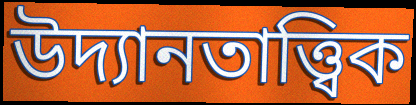
উদ্যানতাত্ত্বিক